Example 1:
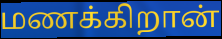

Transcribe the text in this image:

மணக்கிறான்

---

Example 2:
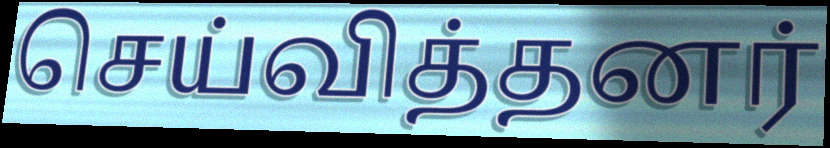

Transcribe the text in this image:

செய்வித்தனர்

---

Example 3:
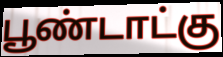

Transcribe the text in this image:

பூண்டாட்கு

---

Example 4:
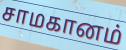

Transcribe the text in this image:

சாமகானம்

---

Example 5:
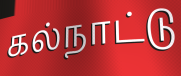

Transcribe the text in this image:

கல்நாட்டு